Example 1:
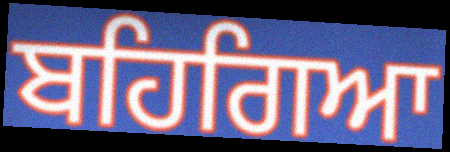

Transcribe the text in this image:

ਬਹਿਗਿਆ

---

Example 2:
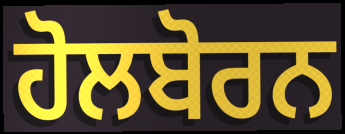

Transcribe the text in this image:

ਹੋਲਬੋਰਨ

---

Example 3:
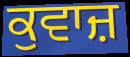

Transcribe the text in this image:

ਕੁਵਾਜ਼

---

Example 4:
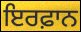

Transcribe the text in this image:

ਇਰਫ਼ਾਨ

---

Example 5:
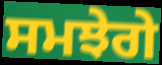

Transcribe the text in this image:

ਸਮਝੇਗੇ